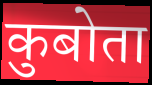
कुबोता